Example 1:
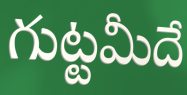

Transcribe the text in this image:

గుట్టమీదే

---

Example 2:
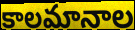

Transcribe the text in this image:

కాలమానాల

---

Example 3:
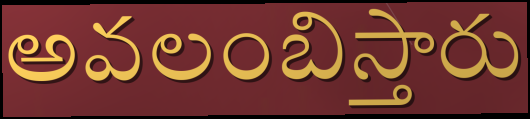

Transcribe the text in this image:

అవలంబిస్తారు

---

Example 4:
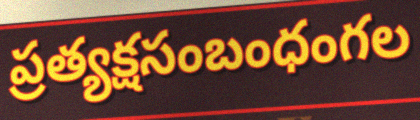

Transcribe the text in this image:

ప్రత్యక్షసంబంధంగల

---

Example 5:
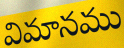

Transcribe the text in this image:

విమానము